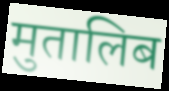
मुतालिब